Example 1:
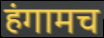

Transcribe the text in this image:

हंगामच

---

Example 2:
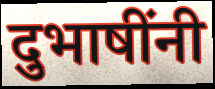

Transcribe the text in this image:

दुभाषींनी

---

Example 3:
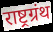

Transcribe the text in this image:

राष्ट्रग्रंथ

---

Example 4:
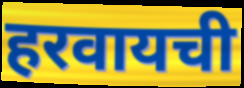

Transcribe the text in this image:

हरवायची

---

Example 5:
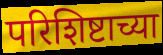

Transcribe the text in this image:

परिशिष्टाच्या